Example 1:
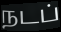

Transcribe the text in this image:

நடப்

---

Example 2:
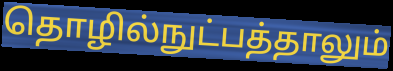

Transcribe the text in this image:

தொழில்நுட்பத்தாலும்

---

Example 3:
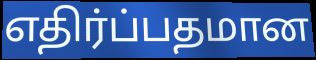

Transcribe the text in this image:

எதிர்ப்பதமான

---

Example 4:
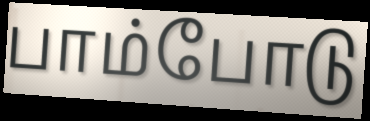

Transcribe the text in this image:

பாம்போடு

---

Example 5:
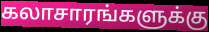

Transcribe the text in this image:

கலாசாரங்களுக்கு